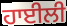
ਹਾਈਲੀ